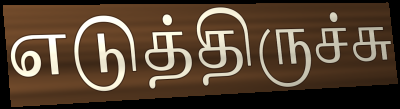
எடுத்திருச்சு